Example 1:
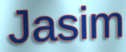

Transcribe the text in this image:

Jasim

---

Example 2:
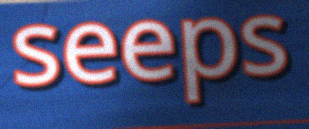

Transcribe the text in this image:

seeps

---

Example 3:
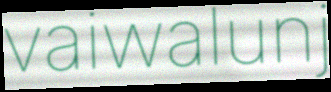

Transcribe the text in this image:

vaiwalunj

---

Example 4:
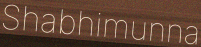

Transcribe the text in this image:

Shabhimunna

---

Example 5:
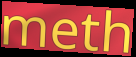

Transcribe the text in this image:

meth